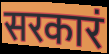
सरकारं